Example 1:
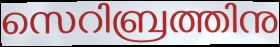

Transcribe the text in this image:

സെറിബ്രത്തിനു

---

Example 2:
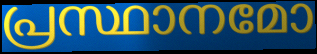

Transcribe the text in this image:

പ്രസ്ഥാനമോ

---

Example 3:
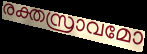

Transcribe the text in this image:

രക്തസ്രാവമോ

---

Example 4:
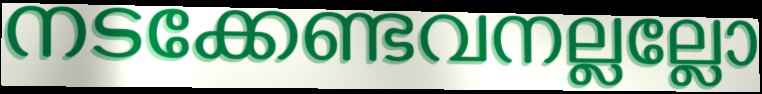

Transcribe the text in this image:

നടക്കേണ്ടവനല്ലല്ലോ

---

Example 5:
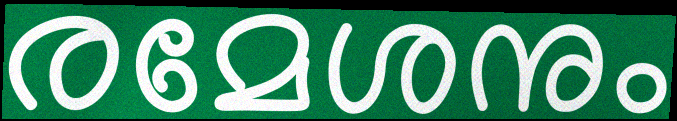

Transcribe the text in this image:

രമേശനും